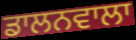
ਡਾਲਨਵਾਲਾ